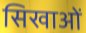
सिखाओं